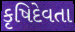
કૃષિદેવતા